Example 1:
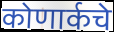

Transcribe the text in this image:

कोणार्कचे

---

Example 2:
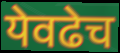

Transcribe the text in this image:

येवढेच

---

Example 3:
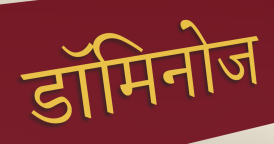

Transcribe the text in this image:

डॉमिनोज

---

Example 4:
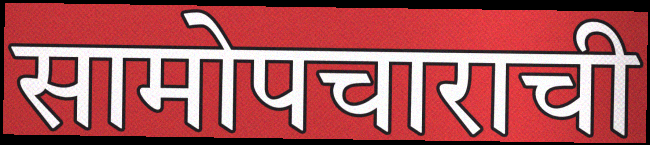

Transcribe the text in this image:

सामोपचाराची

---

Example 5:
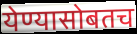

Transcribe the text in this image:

येण्यासोबतच